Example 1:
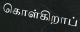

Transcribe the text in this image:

கொள்கிறாப்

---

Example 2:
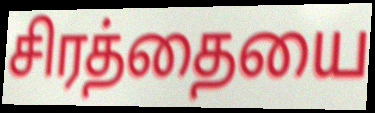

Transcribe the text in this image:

சிரத்தையை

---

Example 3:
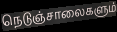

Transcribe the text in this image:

நெடுஞ்சாலைகளும்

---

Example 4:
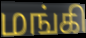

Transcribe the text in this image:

மங்கி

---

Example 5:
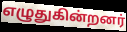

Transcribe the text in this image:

எழுதுகின்றனர்